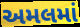
અમલમાં